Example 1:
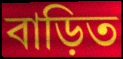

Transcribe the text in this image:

বাড়িত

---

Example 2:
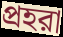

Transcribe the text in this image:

প্রহরা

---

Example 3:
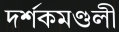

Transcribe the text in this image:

দর্শকমণ্ডলী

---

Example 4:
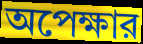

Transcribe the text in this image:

অপেক্ষার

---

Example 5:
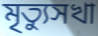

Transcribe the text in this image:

মৃত্যুসখা